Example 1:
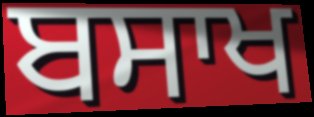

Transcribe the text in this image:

ਬਸਾਖ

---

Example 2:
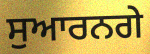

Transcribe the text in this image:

ਸੁਆਰਨਗੇ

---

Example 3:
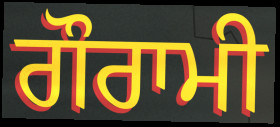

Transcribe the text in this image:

ਗੌਰਾਮੀ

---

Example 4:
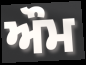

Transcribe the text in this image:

ਔਮ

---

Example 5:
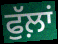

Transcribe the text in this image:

ਫੁੱਲ਼ਾਂ